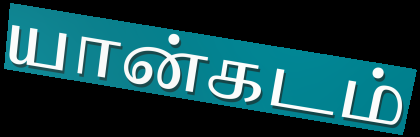
யான்கடம்